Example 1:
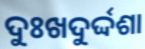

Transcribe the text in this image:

ଦୁଃଖଦୁର୍ଦ୍ଦଶା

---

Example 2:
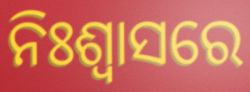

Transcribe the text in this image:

ନିଃଶ୍ଵାସରେ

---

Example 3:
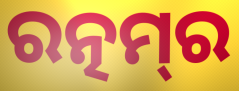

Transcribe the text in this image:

ରତ୍ନମ୍‌ର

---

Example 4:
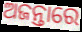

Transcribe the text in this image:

ଅଜନ୍ତାରେ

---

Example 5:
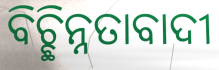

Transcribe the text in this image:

ବିଚ୍ଛିନ୍ନତାବାଦୀ